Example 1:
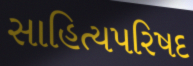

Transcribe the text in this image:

સાહિત્યપરિષદ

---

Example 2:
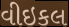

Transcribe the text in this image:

વીઇકલ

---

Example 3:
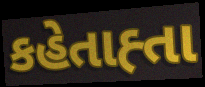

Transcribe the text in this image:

કહેતાહ્તા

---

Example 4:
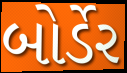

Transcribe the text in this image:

બોર્ડેર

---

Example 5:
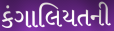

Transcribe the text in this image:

કંગાલિયતની